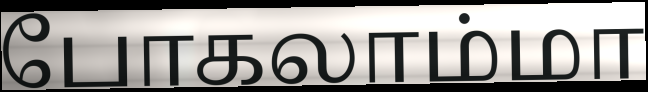
போகலாம்மா